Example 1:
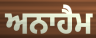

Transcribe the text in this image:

ਅਨਾਹੈਮ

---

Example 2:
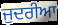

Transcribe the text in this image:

ਜੁਦਰੀਆ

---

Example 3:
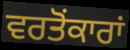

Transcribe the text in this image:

ਵਰਤੋਂਕਾਰਾਂ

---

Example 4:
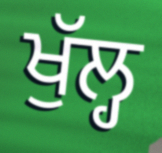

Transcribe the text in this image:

ਖੁੱਲ੍ਹ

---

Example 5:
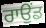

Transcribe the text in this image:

ਰਾਉਂਡ